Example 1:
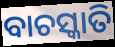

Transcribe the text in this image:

ବାଚସ୍କାତି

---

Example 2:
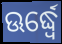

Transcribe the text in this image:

ଊର୍ଦ୍ଧ୍ୱେ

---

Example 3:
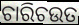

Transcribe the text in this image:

ଚାରିଚଉତ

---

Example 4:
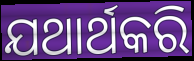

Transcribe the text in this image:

ଯଥାର୍ଥକରି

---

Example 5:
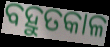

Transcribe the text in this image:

ବହୁତକାଳ